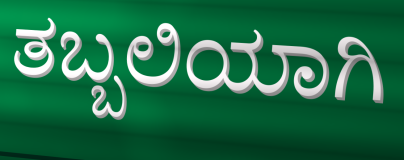
ತಬ್ಬಲಿಯಾಗಿ